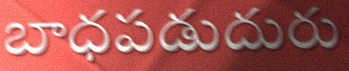
బాధపడుదురు